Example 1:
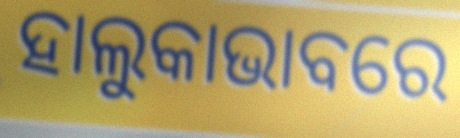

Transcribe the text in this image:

ହାଲୁକାଭାବରେ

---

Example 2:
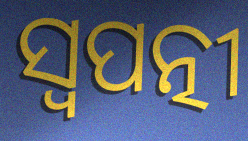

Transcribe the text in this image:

ସ୍ୱପତ୍ନୀ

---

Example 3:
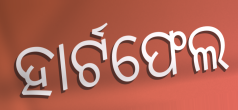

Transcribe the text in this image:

ହାର୍ଟଫେଲ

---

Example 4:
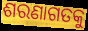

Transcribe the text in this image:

ଶରଣାଗତକୁ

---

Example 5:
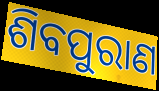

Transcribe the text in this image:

ଶିବପୁରାଣ